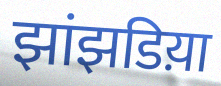
झांझडिय़ा